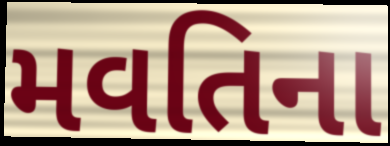
મવતિના